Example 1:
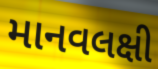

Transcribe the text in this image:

માનવલક્ષી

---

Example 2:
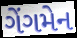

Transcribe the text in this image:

ગેંગમેન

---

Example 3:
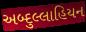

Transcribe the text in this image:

અબ્દુલ્લાહિયન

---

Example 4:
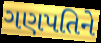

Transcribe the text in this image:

ગણપતિને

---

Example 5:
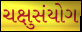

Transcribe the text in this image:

ચક્ષુસંયોગ